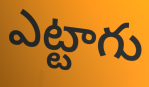
ఎట్టాగు